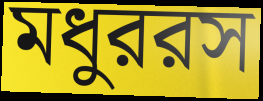
মধুররস